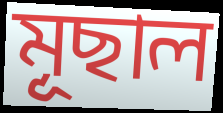
মূছাল